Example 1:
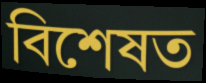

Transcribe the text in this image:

বিশেষত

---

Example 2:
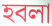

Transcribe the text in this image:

হবলা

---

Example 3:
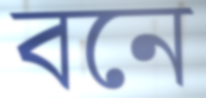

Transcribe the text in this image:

বনে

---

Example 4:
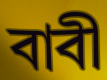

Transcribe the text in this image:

বাবী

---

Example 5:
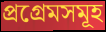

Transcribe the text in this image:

প্ৰগ্ৰেমসমূহ